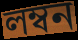
লম্বন